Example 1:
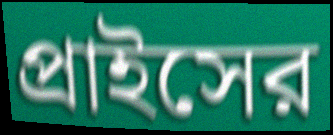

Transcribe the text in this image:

প্রাইসের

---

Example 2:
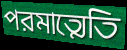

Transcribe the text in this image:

পরমাত্মেতি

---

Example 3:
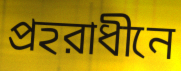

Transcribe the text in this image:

প্রহরাধীনে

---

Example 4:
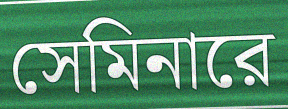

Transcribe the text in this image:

সেমিনারে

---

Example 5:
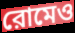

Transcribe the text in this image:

রোমেও